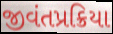
જીવંતપ્રક્રિયા